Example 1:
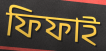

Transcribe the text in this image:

ফিফাই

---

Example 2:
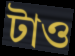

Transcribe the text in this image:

টাও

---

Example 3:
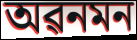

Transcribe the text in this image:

অৱনমন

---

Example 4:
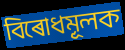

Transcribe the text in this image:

বিৰোধমূলক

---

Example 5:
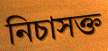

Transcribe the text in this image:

নিচাসক্ত